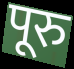
पूरु